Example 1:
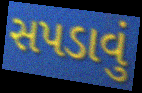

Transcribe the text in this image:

સપડાવું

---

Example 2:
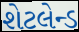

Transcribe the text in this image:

શેટલેન્ડ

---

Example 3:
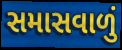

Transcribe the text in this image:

સમાસવાળું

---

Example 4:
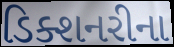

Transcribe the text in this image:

ડિક્શનરીના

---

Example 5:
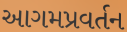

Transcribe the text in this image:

આગમપ્રવર્તન